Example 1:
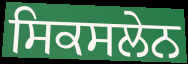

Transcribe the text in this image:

ਸਿਕਸਲੇਨ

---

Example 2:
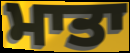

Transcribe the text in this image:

ਮਾਤਾ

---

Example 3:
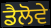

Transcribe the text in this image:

ਡੈਲੋਵੇ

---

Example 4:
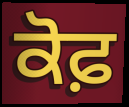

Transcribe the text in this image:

ਕੋਫ਼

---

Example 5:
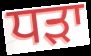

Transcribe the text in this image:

ਧੜਾ